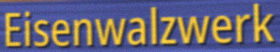
Eisenwalzwerk